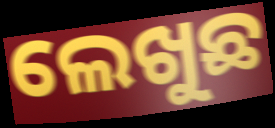
ଲେଖୁଛ